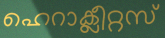
ഹെറാക്ലീറ്റസ്